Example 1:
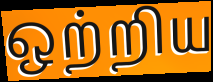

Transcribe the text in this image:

ஒற்றிய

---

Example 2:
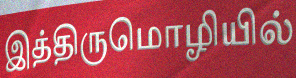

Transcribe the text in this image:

இத்திருமொழியில்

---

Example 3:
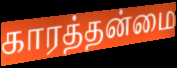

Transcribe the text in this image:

காரத்தன்மை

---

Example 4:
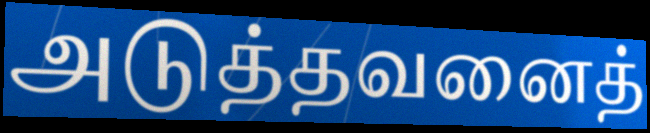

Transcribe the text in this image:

அடுத்தவனைத்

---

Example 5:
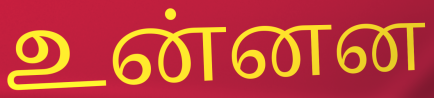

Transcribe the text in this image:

உன்னன